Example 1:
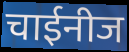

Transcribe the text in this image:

चाईनीज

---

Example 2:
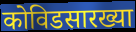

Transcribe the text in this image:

कोविडसारख्या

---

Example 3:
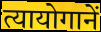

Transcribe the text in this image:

त्यायोगानें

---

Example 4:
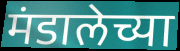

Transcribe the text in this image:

मंडालेच्या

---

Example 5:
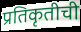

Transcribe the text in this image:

प्रतिकृतीची